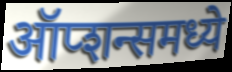
ऑप्शन्समध्ये